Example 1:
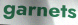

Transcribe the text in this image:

garnets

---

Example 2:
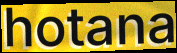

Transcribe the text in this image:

hotana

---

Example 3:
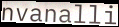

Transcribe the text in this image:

nvanalli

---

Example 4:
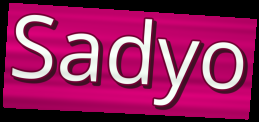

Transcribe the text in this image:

Sadyo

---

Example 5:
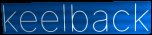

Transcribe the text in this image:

keelback